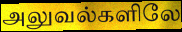
அலுவல்களிலே